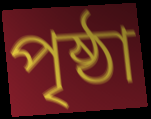
পৃষ্ঠা